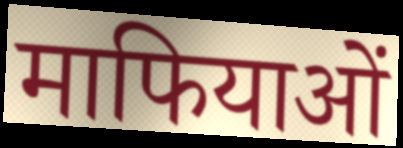
माफियाओं